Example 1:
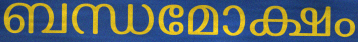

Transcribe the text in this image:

ബന്ധമോക്ഷം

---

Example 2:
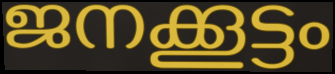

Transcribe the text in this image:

ജനക്കൂട്ടം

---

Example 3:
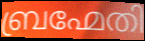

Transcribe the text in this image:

ബ്രഹ്മേതി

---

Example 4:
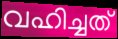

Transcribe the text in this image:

വഹിച്ചത്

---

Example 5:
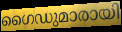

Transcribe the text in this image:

ഗൈഡുമാരായി